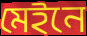
মেইনে